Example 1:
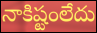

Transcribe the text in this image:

నాకిష్టంలేదు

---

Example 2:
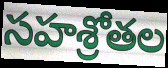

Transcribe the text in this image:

సహశ్రోతల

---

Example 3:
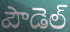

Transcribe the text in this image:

పౌడెల్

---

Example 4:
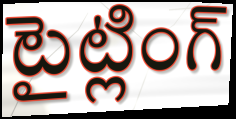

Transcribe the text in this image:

టైట్లింగ్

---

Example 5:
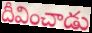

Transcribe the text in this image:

దీవించాడు